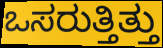
ಒಸರುತ್ತಿತ್ತು